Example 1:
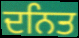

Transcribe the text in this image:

ਦਨਿਤ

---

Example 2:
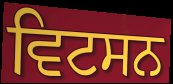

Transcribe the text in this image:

ਵਿਟਸਨ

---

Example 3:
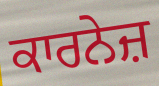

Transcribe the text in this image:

ਕਾਰਨੇਜ਼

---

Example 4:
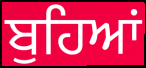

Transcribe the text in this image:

ਬੁਹਿਆਂ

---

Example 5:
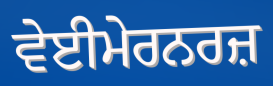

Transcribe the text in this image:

ਵੇਈਮੇਰਨਰਜ਼